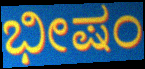
ಭೀಷಂ